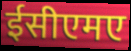
ईसीएमए